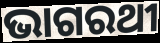
ଭାଗରଥୀ